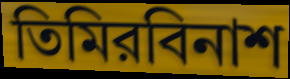
তিমিরবিনাশ